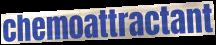
chemoattractant